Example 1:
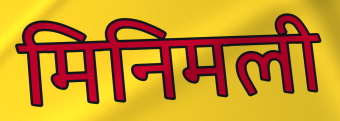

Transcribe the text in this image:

मिनिमली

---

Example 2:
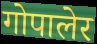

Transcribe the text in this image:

गोपालेर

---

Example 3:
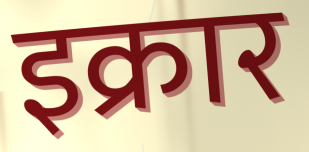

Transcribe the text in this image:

इक्रार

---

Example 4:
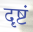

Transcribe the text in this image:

दृष्टं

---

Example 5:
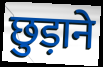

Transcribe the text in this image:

छुड़ाने